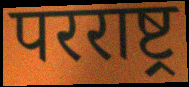
परराष्ट्र